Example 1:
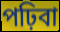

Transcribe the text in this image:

পঢ়িবা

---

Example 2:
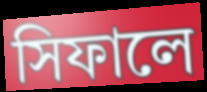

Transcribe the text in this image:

সিফালে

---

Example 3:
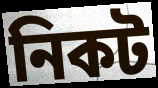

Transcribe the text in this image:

নিকট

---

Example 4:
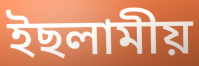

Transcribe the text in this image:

ইছলামীয়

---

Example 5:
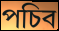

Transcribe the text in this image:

পচিব